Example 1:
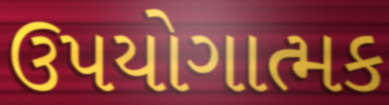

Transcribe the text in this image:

ઉપયોગાત્મક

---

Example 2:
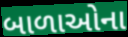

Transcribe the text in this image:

બાળાઓના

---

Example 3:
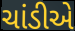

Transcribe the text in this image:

ચાંડીએ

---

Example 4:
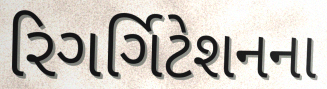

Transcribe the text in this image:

રિગર્ગિટેશનના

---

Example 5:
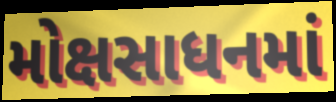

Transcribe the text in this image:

મોક્ષસાધનમાં